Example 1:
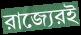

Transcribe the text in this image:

রাজ্যেরই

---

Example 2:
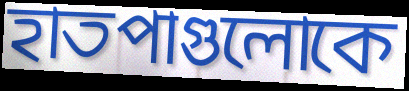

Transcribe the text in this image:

হাতপাগুলোকে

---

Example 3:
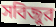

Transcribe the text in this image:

সবিজুর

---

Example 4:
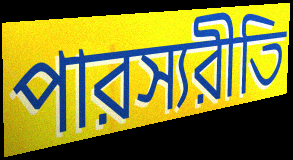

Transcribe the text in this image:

পারস্যরীতি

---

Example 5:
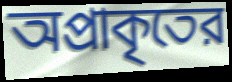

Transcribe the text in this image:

অপ্রাকৃতের